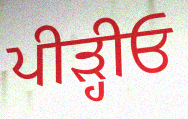
ਪੀੜ੍ਹੀਓ